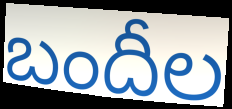
బందీల